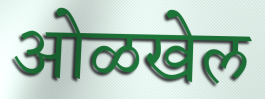
ओळखेल